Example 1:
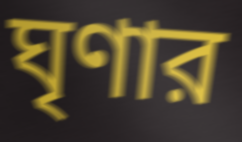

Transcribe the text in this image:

ঘৃণার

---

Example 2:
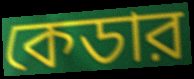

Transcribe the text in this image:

কেডার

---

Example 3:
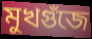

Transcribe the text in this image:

মুখগুঁজে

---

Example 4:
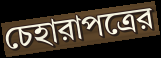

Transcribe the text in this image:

চেহারাপত্রের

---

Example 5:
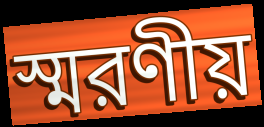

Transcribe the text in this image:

স্মরণীয়